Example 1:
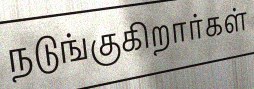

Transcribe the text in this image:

நடுங்குகிறார்கள்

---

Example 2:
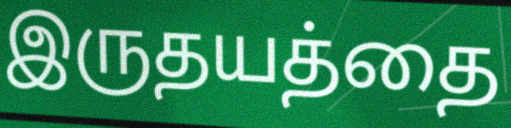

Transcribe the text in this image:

இருதயத்தை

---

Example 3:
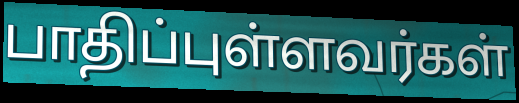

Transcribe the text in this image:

பாதிப்புள்ளவர்கள்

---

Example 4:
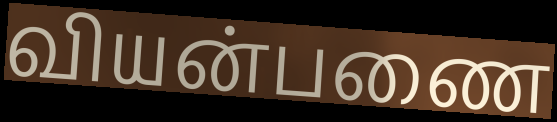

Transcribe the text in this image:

வியன்பணை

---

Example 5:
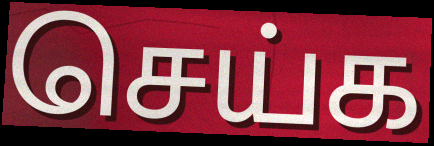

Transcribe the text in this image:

செய்க